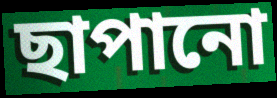
ছাপানো